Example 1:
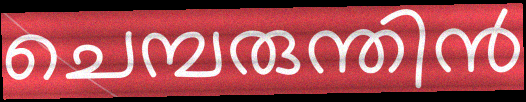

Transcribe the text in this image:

ചെമ്പരുന്തിൻ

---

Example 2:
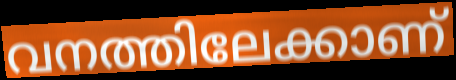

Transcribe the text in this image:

വനത്തിലേക്കാണ്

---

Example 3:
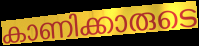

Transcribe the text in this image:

കാണിക്കാരുടെ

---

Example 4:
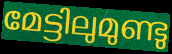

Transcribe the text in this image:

മേട്ടിലുമുണ്ടു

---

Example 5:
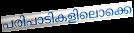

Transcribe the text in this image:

പരിപാടികളിലൊക്കെ